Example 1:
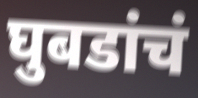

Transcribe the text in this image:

घुबडांचं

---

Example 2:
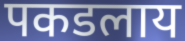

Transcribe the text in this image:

पकडलाय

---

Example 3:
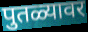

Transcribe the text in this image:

पुतळ्यावर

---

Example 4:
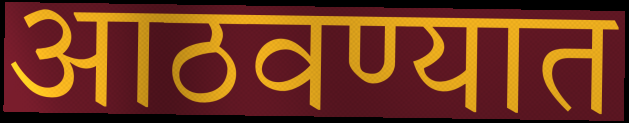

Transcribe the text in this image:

आठवण्यात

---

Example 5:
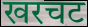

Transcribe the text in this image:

खरचट